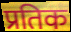
प्रतिक